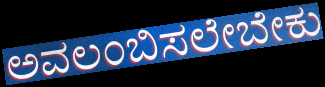
ಅವಲಂಬಿಸಲೇಬೇಕು